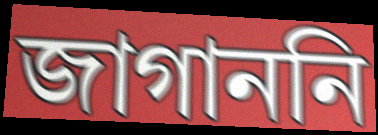
জাগাননি